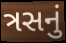
ત્રસનું